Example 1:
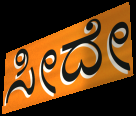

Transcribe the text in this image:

ಸೀದೇ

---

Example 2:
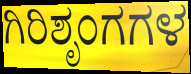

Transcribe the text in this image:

ಗಿರಿಶೃಂಗಗಳ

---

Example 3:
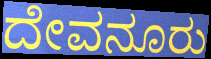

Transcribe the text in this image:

ದೇವನೂರು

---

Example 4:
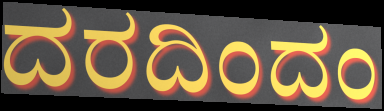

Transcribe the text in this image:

ದರದಿಂದಂ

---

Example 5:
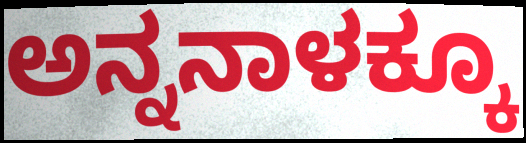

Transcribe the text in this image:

ಅನ್ನನಾಳಕ್ಕೂ